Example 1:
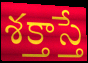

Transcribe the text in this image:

శక్తాస్తే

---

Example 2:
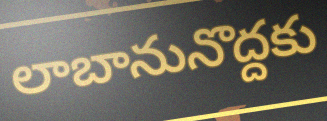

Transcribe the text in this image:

లాబానునొద్దకు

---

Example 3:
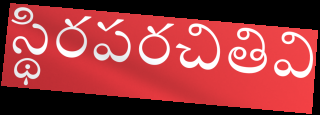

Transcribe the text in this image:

స్థిరపరచితివి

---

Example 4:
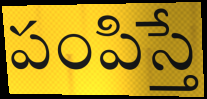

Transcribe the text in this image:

పంపిస్తే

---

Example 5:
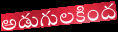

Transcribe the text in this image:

అడుగులకింద